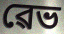
ৱেভ